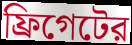
ফ্রিগেটের